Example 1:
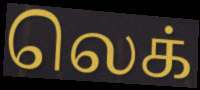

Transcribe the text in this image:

லெக்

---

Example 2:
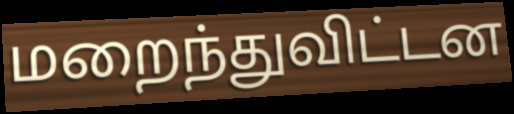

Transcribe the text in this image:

மறைந்துவிட்டன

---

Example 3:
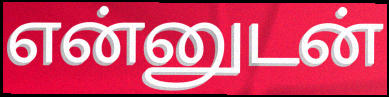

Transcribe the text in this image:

என்னுடன்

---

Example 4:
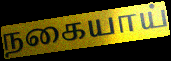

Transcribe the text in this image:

நகையாய்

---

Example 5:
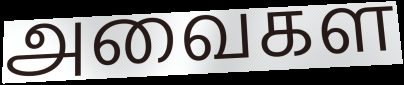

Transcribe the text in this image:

அவைகள